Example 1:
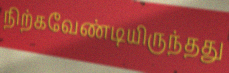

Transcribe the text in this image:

நிற்கவேண்டியிருந்தது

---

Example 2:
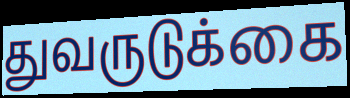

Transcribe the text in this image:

துவருடுக்கை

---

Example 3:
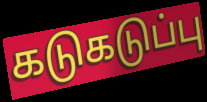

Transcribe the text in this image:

கடுகடுப்பு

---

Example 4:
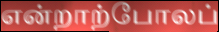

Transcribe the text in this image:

என்றாற்போலப்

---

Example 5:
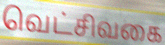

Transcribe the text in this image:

வெட்சிவகை